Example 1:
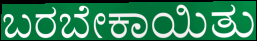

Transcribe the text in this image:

ಬರಬೇಕಾಯಿತು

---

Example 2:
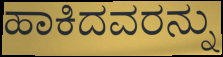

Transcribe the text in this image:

ಹಾಕಿದವರನ್ನು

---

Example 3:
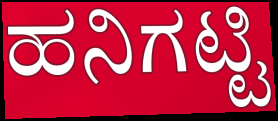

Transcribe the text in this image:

ಹನಿಗಟ್ಟಿ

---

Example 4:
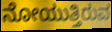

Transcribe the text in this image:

ನೋಯುತ್ತಿರುವ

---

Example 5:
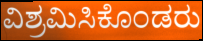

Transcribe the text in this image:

ವಿಶ್ರಮಿಸಿಕೊಂಡರು